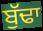
ਬੁੱਢਾ